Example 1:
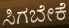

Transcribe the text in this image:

ಸಿಗಬೇಕೆ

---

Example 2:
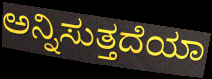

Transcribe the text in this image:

ಅನ್ನಿಸುತ್ತದೆಯಾ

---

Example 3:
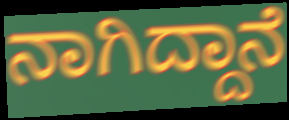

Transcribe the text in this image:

ನಾಗಿದ್ದಾನೆ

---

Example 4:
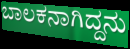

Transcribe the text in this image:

ಬಾಲಕನಾಗಿದ್ದನು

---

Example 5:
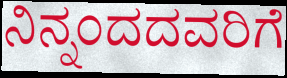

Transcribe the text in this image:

ನಿನ್ನಂದದವರಿಗೆ